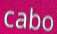
cabo